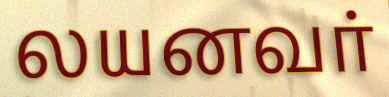
லயனவர்